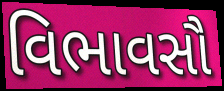
વિભાવસૌ